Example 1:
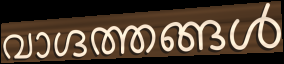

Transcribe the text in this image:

വാഗ്ദത്തങ്ങൾ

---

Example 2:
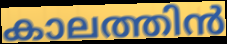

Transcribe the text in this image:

കാലത്തിൻ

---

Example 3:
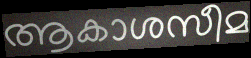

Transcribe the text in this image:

ആകാശസീമ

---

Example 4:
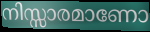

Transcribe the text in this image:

നിസ്സാരമാണോ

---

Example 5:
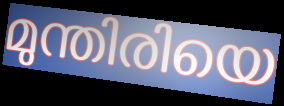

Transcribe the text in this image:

മുന്തിരിയെ